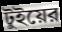
টুইয়ের